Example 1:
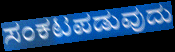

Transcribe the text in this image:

ಸಂಕಟಪಡುವುದು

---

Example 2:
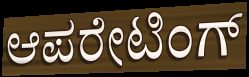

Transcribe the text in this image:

ಆಪರೇಟಿಂಗ್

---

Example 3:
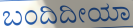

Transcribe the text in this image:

ಬಂದಿದೀಯಾ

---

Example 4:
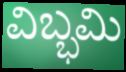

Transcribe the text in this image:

ವಿಬ್ಭಮಿ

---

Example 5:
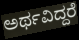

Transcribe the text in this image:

ಅರ್ಥವಿದ್ದರೆ